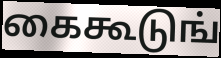
கைகூடுங்